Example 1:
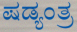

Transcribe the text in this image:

ಷಡ್ಯಂತ್ರ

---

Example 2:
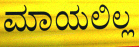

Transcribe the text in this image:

ಮಾಯಲಿಲ್ಲ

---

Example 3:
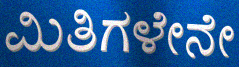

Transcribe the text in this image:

ಮಿತಿಗಳೇನೇ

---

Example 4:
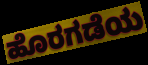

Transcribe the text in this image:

ಹೊರಗಡೆಯ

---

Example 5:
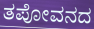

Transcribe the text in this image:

ತಪೋವನದ